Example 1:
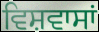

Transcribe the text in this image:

ਵਿਸ਼ਵਾਸਾਂ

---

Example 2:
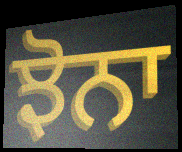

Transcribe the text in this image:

ਝੋਨਾ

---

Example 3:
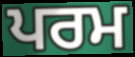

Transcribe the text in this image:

ਪਰਮ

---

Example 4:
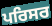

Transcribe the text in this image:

ਪਰਿਸਰ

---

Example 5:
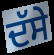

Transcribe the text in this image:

ਦੱਸੇ